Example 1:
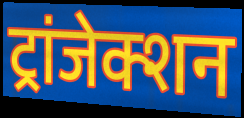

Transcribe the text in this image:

ट्रांजेक्शन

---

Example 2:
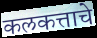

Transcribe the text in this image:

कलकत्ताचे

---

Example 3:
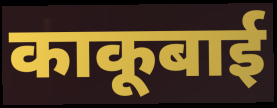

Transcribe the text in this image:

काकूबाई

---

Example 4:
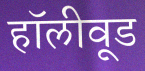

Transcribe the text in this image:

हॉलीवूड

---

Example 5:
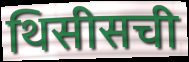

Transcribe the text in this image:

थिसीसची